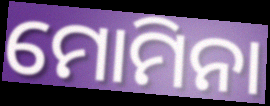
ମୋମିନା